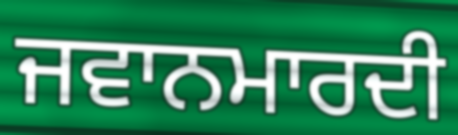
ਜਵਾਨਮਾਰਦੀ